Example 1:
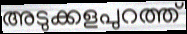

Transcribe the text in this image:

അടുക്കളപുറത്ത്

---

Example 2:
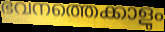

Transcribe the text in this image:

ഭവനത്തെക്കാളും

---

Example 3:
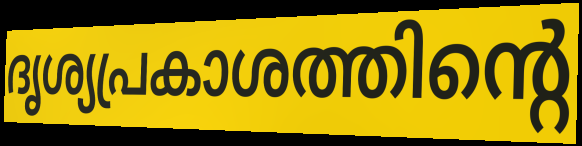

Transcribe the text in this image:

ദൃശ്യപ്രകാശത്തിന്റെ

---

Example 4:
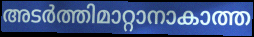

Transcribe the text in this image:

അടർത്തിമാറ്റാനാകാത്ത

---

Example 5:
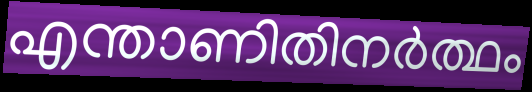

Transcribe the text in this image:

എന്താണിതിനർത്ഥം